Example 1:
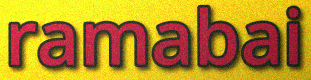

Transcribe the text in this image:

ramabai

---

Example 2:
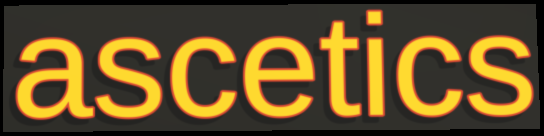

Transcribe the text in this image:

ascetics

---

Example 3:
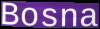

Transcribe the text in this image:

Bosna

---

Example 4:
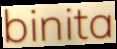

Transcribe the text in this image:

binita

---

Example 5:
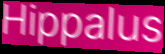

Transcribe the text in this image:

Hippalus